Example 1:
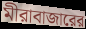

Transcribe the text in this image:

মীরাবাজারের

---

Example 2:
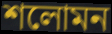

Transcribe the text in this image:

শলোমন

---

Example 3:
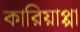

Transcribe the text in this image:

কারিয়াপ্পা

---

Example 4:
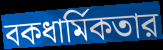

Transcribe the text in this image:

বকধার্মিকতার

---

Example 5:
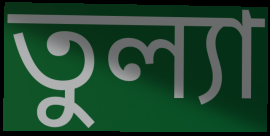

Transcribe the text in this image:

তুল্যা